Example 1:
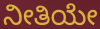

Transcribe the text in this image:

ನೀತಿಯೇ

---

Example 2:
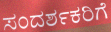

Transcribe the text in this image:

ಸಂದರ್ಶಕರಿಗೆ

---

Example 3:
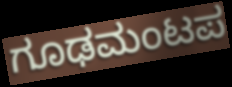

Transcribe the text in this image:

ಗೂಢಮಂಟಪ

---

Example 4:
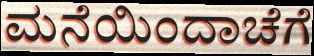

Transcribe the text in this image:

ಮನೆಯಿಂದಾಚೆಗೆ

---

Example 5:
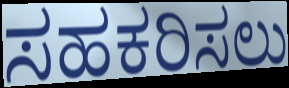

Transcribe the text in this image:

ಸಹಕರಿಸಲು